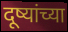
दूष्यांच्या